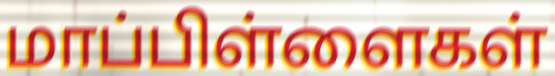
மாப்பிள்ளைகள்